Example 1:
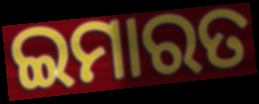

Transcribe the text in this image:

ଇମାରତ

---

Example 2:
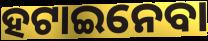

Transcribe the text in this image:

ହଟାଇନେବା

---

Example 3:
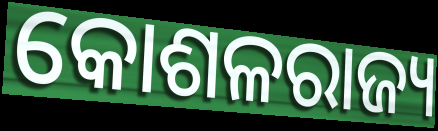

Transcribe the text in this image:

କୋଶଳରାଜ୍ୟ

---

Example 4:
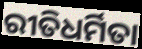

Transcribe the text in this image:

ରୀତିଧର୍ମିତା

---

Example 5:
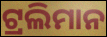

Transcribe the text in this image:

ଟ୍ରଲିମାନ